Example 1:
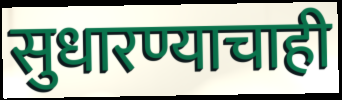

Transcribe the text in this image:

सुधारण्याचाही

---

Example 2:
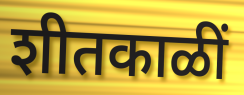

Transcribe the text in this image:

शीतकाळीं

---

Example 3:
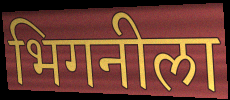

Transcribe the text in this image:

भिगनीला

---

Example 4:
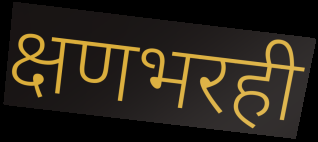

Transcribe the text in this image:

क्षणभरही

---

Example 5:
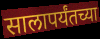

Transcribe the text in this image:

सालापर्यंतच्या